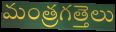
మంత్రగత్తెలు